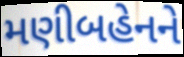
મણીબહેનને